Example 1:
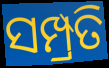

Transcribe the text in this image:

ସମ୍ପ୍ରତି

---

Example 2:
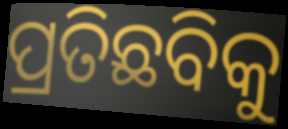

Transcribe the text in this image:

ପ୍ରତିଛବିକୁ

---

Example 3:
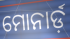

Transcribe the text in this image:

ମୋନାର୍ଡ଼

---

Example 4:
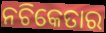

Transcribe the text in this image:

ନଚିକେତାର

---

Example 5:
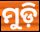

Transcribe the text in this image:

ମୁଡ଼ି